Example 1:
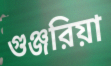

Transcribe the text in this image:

গুঞ্জরিয়া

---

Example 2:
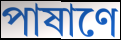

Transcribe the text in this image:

পাষাণে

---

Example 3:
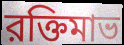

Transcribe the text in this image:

রক্তিমাভ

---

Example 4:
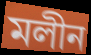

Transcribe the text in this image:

মলীন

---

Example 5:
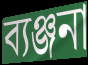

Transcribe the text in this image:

ব্যঞ্জনা